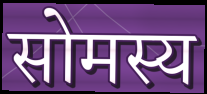
सोमस्य